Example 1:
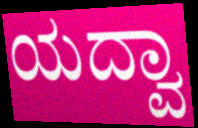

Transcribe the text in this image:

ಯದ್ವಾ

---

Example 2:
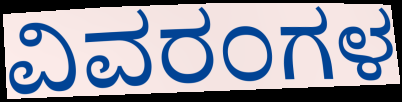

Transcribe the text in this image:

ವಿವರಂಗಳ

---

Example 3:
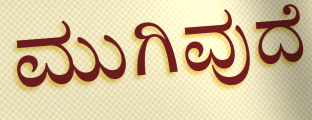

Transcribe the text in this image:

ಮುಗಿವುದೆ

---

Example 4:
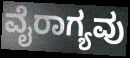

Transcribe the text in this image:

ವೈರಾಗ್ಯವು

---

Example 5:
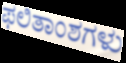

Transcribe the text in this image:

ಫಲಿತಾಂಶಗಳು